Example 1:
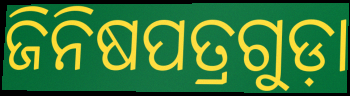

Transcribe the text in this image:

ଜିନିଷପତ୍ରଗୁଡ଼ା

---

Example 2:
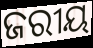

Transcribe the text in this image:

ଜରୀୟ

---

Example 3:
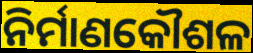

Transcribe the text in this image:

ନିର୍ମାଣକୌଶଳ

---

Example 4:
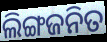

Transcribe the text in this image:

ଲିଙ୍ଗଜନିତ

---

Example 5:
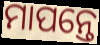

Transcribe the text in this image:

ମାପନ୍ତେ